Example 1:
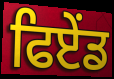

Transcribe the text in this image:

ਫਿਏਂਡ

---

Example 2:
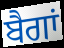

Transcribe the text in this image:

ਬੈਗਾਂ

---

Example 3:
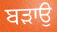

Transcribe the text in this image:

ਬਡ਼ਾਉ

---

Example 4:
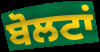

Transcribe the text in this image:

ਬੋਲਟਾਂ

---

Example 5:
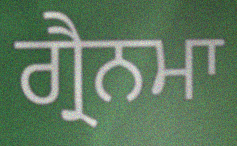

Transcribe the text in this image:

ਗ੍ਰੈਨਮਾ